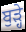
ਬੁੜ੍ਹੇ